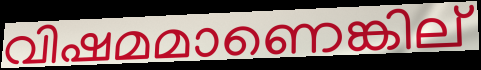
വിഷമമാണെങ്കില്